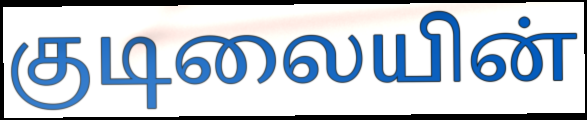
குடிலையின்